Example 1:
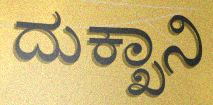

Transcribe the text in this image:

ದುಕ್ಖಾನಿ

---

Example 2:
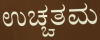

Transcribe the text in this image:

ಉಚ್ಚತಮ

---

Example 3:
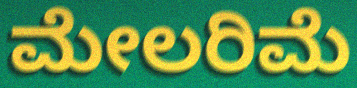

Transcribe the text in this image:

ಮೇಲರಿಮೆ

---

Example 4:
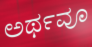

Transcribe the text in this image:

ಅರ್ಥವೂ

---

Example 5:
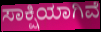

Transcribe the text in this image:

ಸಾಕ್ಷಿಯಾಗಿವೆ